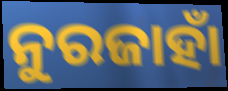
ନୁରଜାହାଁ